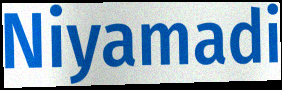
Niyamadi